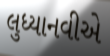
લુધ્યાનવીએ